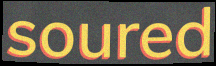
soured